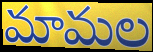
మామల